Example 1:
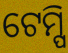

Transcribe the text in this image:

ଟେମ୍ପି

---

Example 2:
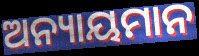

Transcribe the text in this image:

ଅନ୍ୟାୟମାନ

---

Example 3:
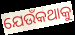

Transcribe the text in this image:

ଯେଉଁକଥାକୁ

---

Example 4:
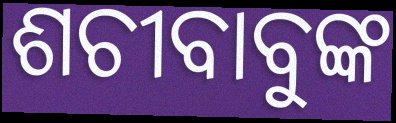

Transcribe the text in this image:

ଶଚୀବାବୁଙ୍କ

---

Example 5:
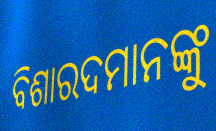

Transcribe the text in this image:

ବିଶାରଦମାନଙ୍କୁ